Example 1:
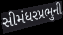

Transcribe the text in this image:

સીમંધરપ્રભુની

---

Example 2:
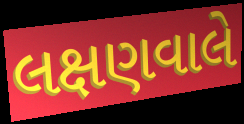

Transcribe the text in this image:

લક્ષણવાલે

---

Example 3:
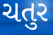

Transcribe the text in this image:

ચતુર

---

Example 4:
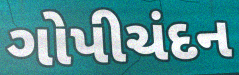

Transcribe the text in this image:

ગોપીચંદન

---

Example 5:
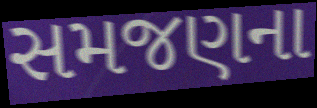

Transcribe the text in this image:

સમજણના